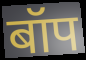
बॉप